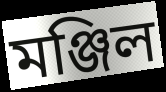
মঞ্জিল